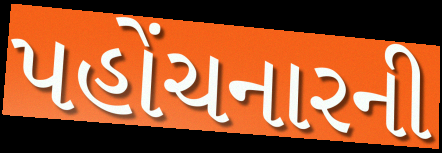
પહોંચનારની